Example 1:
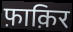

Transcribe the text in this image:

फ़ाक़िर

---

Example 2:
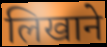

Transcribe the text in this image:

लिखाने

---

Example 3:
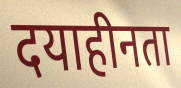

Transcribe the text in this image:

दयाहीनता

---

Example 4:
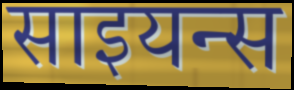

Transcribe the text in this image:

साइयन्स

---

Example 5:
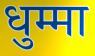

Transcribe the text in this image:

धुम्मा